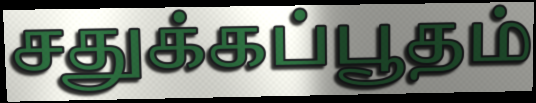
சதுக்கப்பூதம்